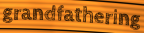
grandfathering